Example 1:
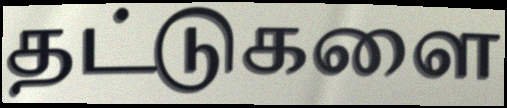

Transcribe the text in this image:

தட்டுகளை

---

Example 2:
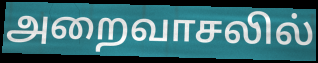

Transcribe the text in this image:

அறைவாசலில்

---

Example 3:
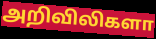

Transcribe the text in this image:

அறிவிலிகளா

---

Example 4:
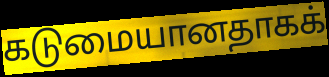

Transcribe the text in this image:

கடுமையானதாகக்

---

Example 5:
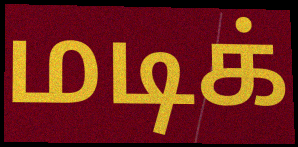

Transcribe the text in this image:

மடிக்